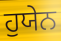
ਹੁਯੇਨ